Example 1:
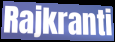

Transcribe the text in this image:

Rajkranti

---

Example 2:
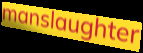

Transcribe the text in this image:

manslaughter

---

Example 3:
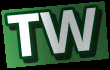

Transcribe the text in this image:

TW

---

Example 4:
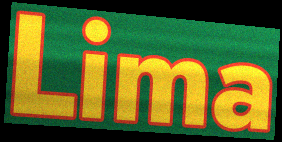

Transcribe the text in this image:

Lima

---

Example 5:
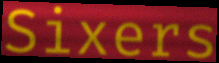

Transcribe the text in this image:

Sixers